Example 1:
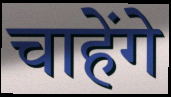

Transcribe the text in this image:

चाहेंगे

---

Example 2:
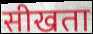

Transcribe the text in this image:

सीखता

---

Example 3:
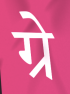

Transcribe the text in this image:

ग्रे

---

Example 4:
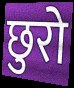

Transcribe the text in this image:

छुरो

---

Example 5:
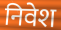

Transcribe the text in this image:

निवेश